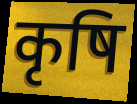
कृषि